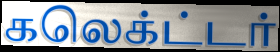
கலெக்ட்டர்